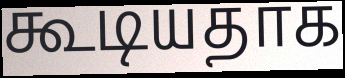
கூடியதாக